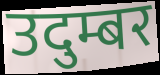
उदुम्बर